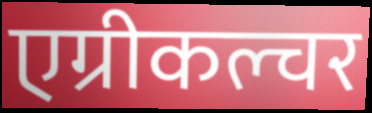
एग्रीकल्चर